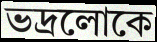
ভদ্ৰলোকে